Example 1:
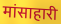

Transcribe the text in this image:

मांसाहारी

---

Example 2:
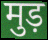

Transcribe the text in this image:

मुड़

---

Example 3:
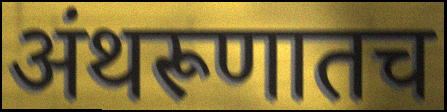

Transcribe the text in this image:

अंथरूणातच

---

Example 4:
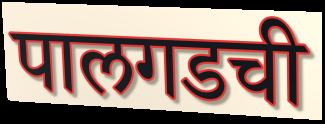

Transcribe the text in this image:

पालगडची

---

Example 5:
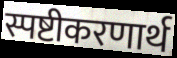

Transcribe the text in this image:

स्पष्टीकरणार्थ